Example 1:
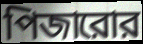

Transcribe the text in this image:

পিজারোর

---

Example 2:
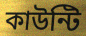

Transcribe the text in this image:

কাউন্টি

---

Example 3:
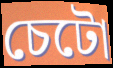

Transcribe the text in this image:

চেটো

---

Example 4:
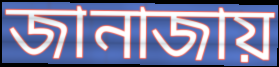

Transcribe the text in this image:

জানাজায়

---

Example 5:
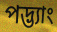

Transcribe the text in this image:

পদ্ভ্যাং